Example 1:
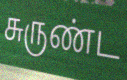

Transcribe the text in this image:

சுருண்ட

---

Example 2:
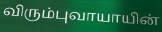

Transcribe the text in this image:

விரும்புவாயாயின்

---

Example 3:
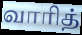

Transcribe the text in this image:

வாரித்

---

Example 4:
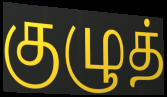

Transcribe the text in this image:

குழுத்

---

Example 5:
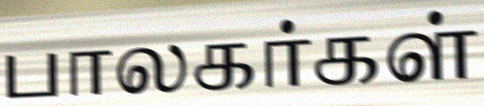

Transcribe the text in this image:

பாலகர்கள்